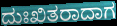
ದುಃಖಿತರಾದಾಗ